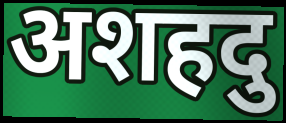
अशहदु